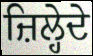
ਜ਼ਿਲ੍ਹੇਦੇ